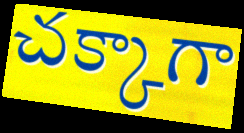
చక్కాగా